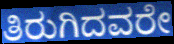
ತಿರುಗಿದವರೇ